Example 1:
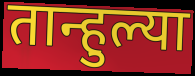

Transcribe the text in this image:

तान्हुल्या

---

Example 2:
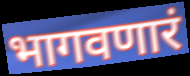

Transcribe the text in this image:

भागवणारं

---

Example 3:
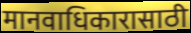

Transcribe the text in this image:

मानवाधिकारासाठी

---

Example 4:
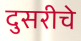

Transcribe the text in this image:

दुसरीचे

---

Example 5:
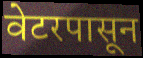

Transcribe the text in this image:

वेटरपासून